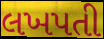
લખપતી